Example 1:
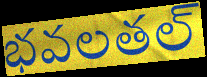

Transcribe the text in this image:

భవలతల్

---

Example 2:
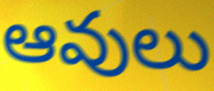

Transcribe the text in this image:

ఆవులు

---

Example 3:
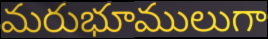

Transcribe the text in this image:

మరుభూములుగా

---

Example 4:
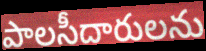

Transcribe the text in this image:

పాలసీదారులను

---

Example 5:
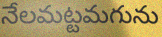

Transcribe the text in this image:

నేలమట్టమగును